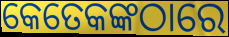
କେତେକଙ୍କଠାରେ